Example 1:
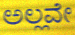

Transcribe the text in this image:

ಅಲ್ಲವೇ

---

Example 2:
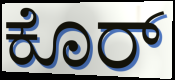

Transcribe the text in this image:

ಕೊರ್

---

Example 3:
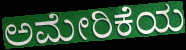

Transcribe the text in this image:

ಅಮೇರಿಕೆಯ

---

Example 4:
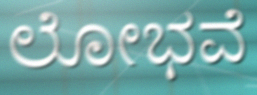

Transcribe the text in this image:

ಲೋಭವೆ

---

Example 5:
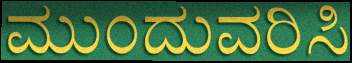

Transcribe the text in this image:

ಮುಂದುವರಿಸಿ